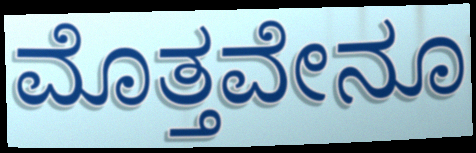
ಮೊತ್ತವೇನೂ